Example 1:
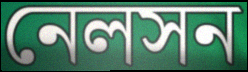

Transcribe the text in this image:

নেলসন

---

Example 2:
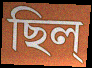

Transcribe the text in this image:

ছিল্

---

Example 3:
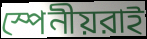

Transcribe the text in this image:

স্পেনীয়রাই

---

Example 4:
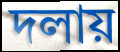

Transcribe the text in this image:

দলায়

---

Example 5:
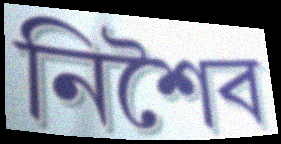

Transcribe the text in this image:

নিশৈব